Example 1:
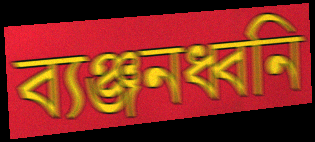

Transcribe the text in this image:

ব্যঞ্জনধ্বনি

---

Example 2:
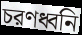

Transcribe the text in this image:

চরণধ্বনি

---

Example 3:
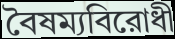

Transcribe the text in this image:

বৈষম্যবিরোধী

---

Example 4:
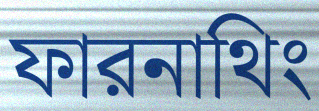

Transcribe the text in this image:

ফারনাথিং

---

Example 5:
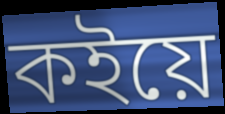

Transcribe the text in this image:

কইয়ে